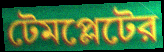
টেমপ্লেটের